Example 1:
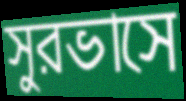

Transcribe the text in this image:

সুরভাসে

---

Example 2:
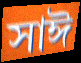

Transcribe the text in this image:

সাঈ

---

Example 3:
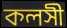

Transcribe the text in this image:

কলসী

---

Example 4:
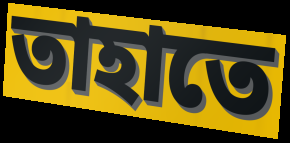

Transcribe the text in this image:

তাহাতে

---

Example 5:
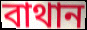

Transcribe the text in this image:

বাথান